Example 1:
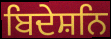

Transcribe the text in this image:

ਬਿਦੇਸ਼ਨਿ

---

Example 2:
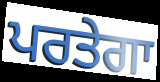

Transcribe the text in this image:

ਪਰਤੇਗਾ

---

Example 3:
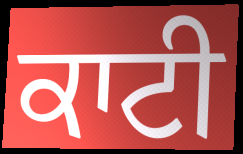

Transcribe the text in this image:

ਕਾਟੀ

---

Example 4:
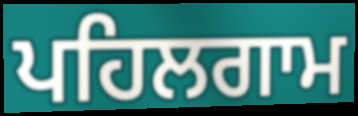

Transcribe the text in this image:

ਪਹਿਲਗਾਮ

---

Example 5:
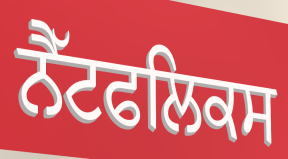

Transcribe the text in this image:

ਨੈੱਟਫਲਿਕਸ